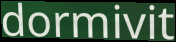
dormivit